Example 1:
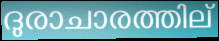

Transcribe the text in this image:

ദുരാചാരത്തില്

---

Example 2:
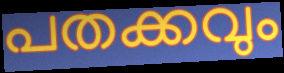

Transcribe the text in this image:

പതക്കവും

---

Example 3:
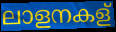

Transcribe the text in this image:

ലാളനകള്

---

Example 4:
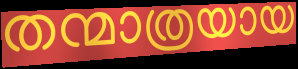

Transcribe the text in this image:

തന്മാത്രയായ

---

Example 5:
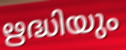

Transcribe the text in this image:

ഋദ്ധിയും